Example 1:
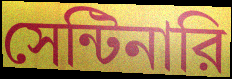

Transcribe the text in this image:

সেন্টিনারি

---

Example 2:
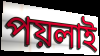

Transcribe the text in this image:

পয়লাই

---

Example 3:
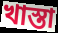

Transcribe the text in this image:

খাস্তা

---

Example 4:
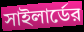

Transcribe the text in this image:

সাইলার্ডের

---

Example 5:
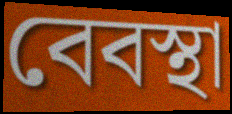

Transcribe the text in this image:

বেবস্থা